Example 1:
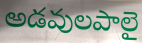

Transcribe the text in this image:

అడవులపాలై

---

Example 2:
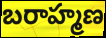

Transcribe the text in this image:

బరాహ్మణ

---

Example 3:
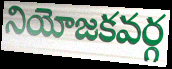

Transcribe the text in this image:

నియోజకవర్గ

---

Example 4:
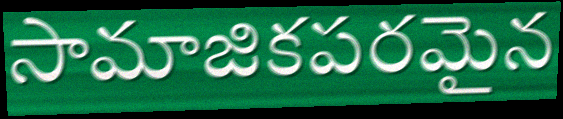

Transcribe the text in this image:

సామాజికపరమైన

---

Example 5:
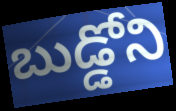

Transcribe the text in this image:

బుడ్డోని